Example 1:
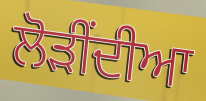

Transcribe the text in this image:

ਲੋੜੀਂਦੀਆ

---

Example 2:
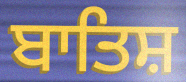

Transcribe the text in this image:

ਬਾਤਿਸ਼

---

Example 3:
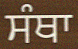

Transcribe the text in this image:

ਸੰਥਾ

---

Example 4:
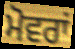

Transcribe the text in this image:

ਮੋਵਰਾਂ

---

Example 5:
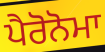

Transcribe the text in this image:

ਪੈਰੋਨੋਮਾ